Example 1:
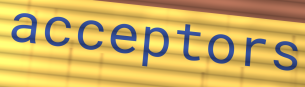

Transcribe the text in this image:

acceptors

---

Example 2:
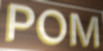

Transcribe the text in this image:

POM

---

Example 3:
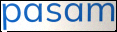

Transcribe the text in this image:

pasam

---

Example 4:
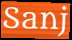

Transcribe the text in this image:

Sanj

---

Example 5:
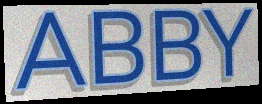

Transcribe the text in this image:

ABBY